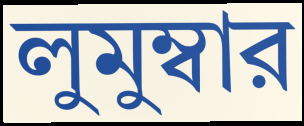
লুমুম্বার